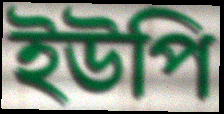
ইউপি